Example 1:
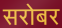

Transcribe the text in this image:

सरोबर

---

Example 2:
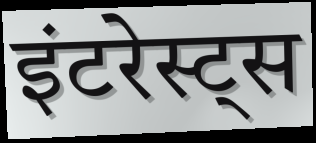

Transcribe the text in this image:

इंटरेस्ट्स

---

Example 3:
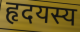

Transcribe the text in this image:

हृदयस्य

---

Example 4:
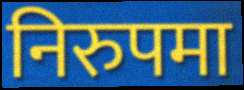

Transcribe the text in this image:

निरुपमा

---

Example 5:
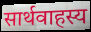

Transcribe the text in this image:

सार्थवाहस्य